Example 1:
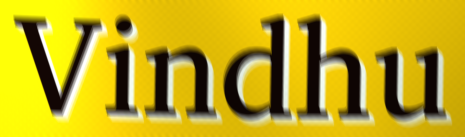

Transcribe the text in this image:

Vindhu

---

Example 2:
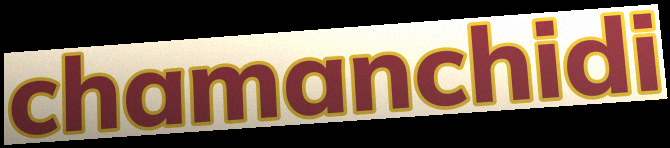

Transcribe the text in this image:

chamanchidi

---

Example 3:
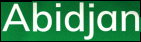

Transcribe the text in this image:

Abidjan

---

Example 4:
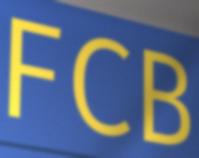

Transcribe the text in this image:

FCB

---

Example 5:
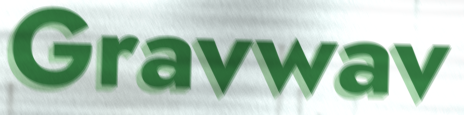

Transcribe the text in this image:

Gravwav